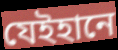
যেইহানে